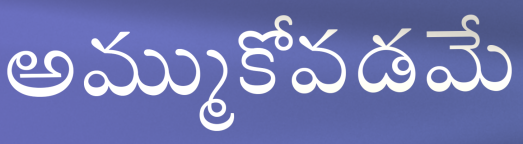
అమ్ముకోవడమే